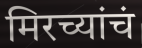
मिरच्यांचं